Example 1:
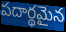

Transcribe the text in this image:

పదార్థమైన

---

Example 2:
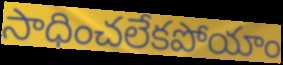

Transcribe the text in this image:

సాధించలేకపోయాం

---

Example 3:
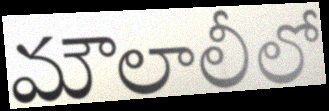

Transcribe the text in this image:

మౌలాలీలో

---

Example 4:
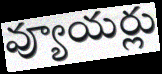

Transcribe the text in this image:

వ్యూయర్లు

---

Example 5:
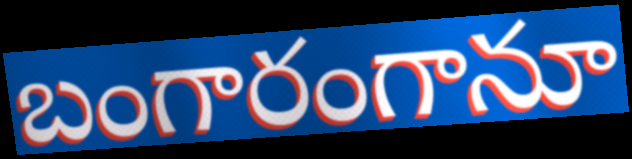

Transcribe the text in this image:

బంగారంగానూ